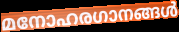
മനോഹരഗാനങ്ങൾ